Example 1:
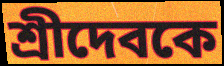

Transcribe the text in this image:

শ্রীদেবকে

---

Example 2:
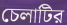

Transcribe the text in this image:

চেলাটির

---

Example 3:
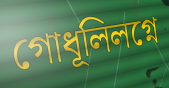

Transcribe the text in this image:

গোধূলিলগ্নে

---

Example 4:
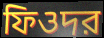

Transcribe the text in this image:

ফিওদর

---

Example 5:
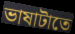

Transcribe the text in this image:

ভাষাটাতে